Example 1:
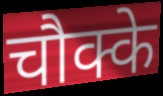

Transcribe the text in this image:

चौक्के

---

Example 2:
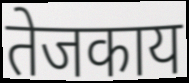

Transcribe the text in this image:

तेजकाय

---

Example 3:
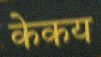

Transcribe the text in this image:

केकय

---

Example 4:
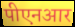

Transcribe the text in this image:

पीएनआर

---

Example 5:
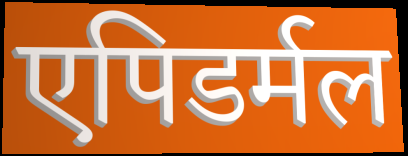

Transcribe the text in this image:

एपिडर्मल